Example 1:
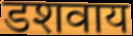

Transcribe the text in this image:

डशवाय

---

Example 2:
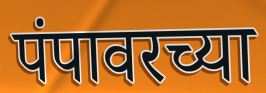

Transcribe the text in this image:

पंपावरच्या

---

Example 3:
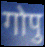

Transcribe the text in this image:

गोपु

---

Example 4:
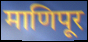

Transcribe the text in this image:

माणिपूर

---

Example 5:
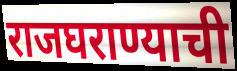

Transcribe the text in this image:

राजघराण्याची